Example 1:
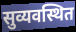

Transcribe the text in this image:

सुव्यवस्थित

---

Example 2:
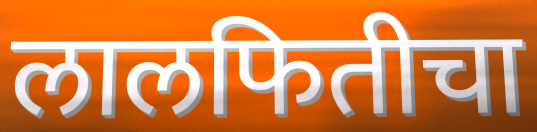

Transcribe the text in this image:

लालफितीचा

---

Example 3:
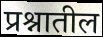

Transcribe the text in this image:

प्रश्नातील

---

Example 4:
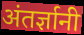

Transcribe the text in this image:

अंतर्ज्ञानी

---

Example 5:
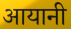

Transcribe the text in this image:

आयानी